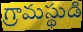
గ్రామస్థుడి